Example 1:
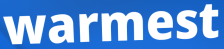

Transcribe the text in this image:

warmest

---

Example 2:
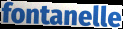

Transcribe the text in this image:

fontanelle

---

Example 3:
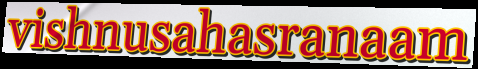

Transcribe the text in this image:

vishnusahasranaam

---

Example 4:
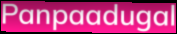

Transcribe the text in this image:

Panpaadugal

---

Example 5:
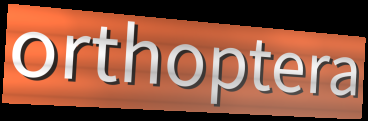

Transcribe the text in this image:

orthoptera